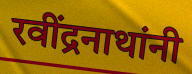
रवींद्रनाथांनी